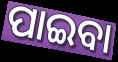
ପାଇବା